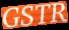
GSTR